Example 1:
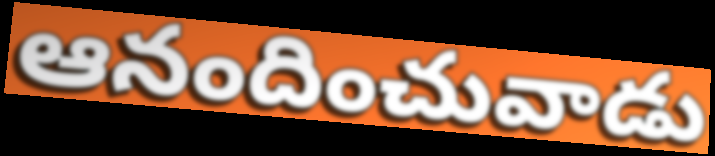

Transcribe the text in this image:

ఆనందించువాడు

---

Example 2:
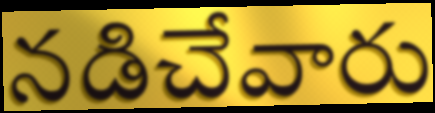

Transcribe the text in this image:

నడిచేవారు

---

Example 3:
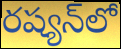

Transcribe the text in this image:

రష్యన్‌లో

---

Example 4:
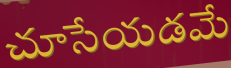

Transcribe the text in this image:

చూసేయడమే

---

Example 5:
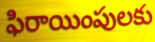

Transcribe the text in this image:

ఫిరాయింపులకు